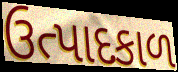
ઉત્પાદકાળ